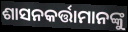
ଶାସନକର୍ତ୍ତାମାନଙ୍କୁ